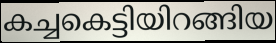
കച്ചകെട്ടിയിറങ്ങിയ